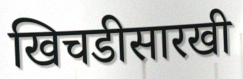
खिचडीसारखी